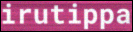
irutippa